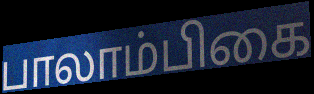
பாலாம்பிகை